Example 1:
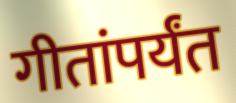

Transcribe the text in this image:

गीतांपर्यंत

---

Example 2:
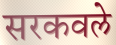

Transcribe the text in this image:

सरकवले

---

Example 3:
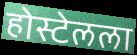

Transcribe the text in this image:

होस्टेलला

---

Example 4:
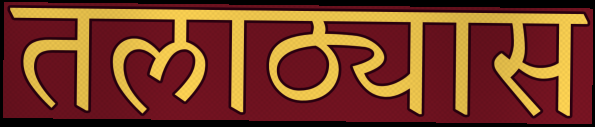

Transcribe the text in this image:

तलाठ्यास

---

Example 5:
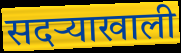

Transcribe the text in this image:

सदऱ्याखाली